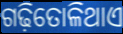
ଗଢ଼ିତୋଳିଥାଏ